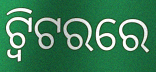
ଟ୍ବିଟରରେ